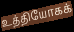
உத்தியோகக்